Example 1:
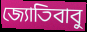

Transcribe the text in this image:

জ্যোতিবাবু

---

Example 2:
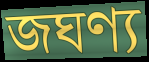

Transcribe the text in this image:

জঘণ্য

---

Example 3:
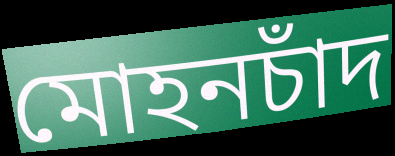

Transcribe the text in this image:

মোহনচাঁদ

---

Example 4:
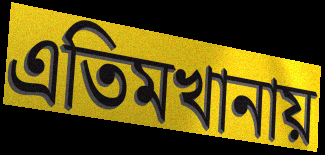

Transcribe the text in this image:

এতিমখানায়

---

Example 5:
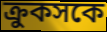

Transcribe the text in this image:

ক্রুকসকে